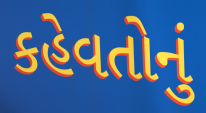
કહેવતોનું